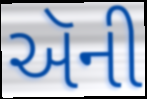
ઍની